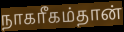
நாகரீகம்தான்